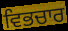
ਵਿਭਚਾਰ